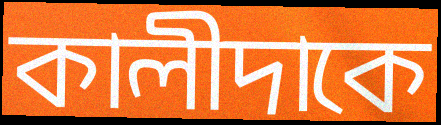
কালীদাকে